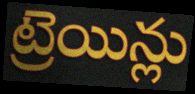
ట్రెయిన్లు